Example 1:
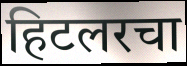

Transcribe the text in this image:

हिटलरचा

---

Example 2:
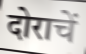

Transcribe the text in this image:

दोराचें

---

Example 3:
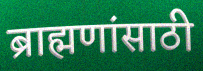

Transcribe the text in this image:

ब्राह्मणांसाठी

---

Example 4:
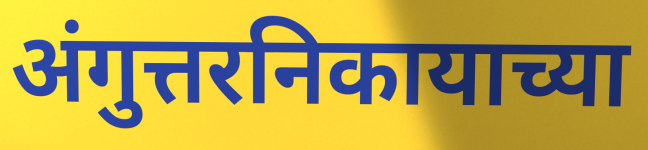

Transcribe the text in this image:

अंगुत्तरनिकायाच्या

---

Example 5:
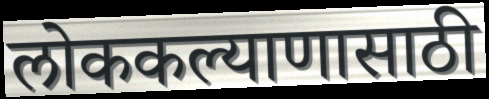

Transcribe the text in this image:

लोककल्याणासाठी